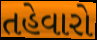
તહેવારો